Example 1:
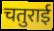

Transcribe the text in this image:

चतुराई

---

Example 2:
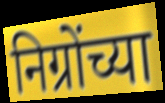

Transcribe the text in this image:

निग्रोंच्या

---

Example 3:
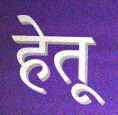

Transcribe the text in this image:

हेतू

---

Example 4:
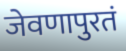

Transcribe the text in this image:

जेवणापुरतं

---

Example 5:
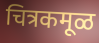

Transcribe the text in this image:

चित्रकमूळ